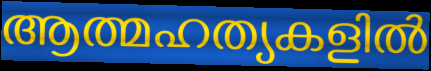
ആത്മഹത്യകളിൽ